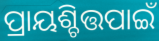
ପ୍ରାୟଶ୍ଚିତ୍ତପାଇଁ